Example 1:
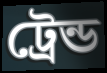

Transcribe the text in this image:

ট্রেন্ড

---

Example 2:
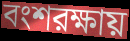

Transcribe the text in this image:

বংশরক্ষায়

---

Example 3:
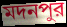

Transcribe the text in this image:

মদনপুর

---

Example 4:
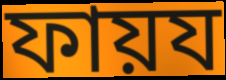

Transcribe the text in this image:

ফায়য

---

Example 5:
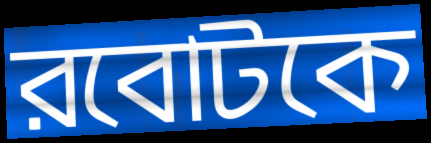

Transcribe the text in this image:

রবোটকে